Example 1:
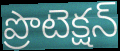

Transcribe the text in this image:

ప్రొటెక్షన్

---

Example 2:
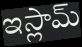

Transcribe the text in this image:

ఇస్లామ్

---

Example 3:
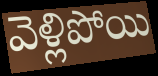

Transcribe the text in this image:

వెళ్లిపోయి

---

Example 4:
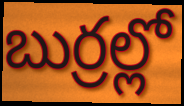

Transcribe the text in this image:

బుర్రల్లో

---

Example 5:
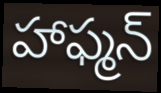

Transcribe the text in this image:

హాఫ్మన్